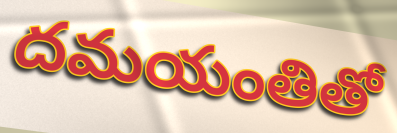
దమయంతితో